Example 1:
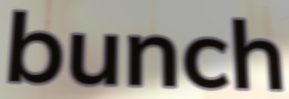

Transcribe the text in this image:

bunch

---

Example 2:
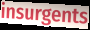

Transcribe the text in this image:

insurgents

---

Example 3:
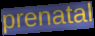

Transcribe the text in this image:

prenatal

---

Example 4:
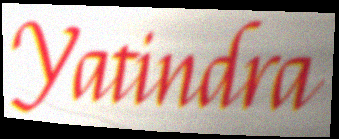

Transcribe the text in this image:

Yatindra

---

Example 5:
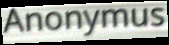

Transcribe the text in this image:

Anonymus